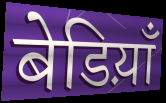
बेडिय़ाँ